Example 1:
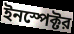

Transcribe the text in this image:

ইনস্পেক্টর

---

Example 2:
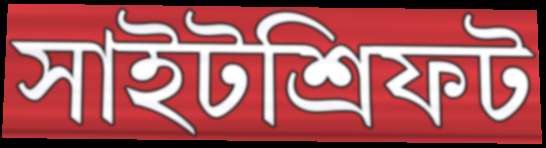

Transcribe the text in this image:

সাইটশ্রিফট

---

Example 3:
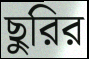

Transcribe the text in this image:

ছুরির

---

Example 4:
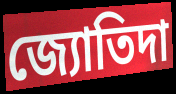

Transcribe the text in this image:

জ্যোতিদা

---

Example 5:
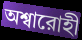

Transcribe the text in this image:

অশ্বারোহী